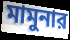
মামুনার